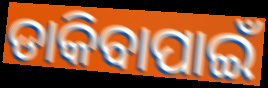
ଡାକିବାପାଇଁ